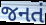
જનતં